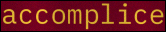
accomplice